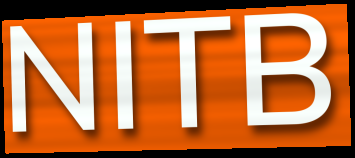
NITB